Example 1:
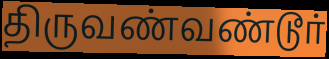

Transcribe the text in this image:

திருவண்வண்டூர்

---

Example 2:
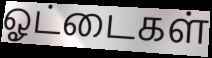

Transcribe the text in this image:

ஓட்டைகள்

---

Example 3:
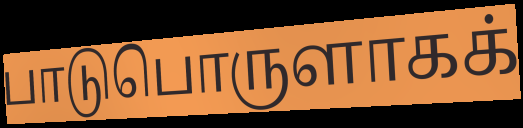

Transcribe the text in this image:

பாடுபொருளாகக்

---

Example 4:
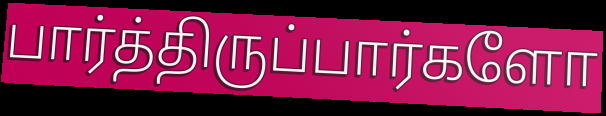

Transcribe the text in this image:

பார்த்திருப்பார்களோ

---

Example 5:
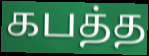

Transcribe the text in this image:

கபத்த